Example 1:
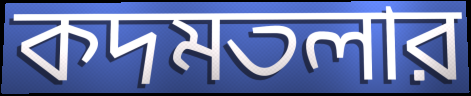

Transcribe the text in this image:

কদমতলার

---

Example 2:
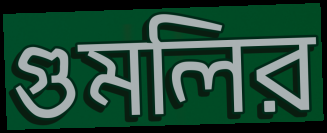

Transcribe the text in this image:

গুমলির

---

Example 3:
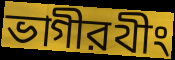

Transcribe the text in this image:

ভাগীরথীং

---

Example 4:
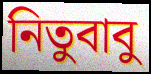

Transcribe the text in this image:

নিতুবাবু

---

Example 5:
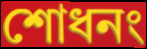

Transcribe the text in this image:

শোধনং